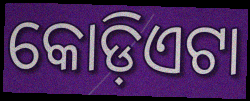
କୋଡ଼ିଏଟା